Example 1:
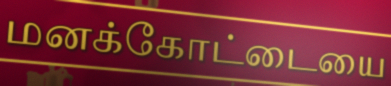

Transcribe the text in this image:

மனக்கோட்டையை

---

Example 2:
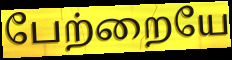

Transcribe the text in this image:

பேற்றையே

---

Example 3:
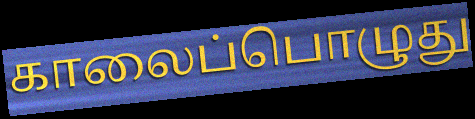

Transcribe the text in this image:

காலைப்பொழுது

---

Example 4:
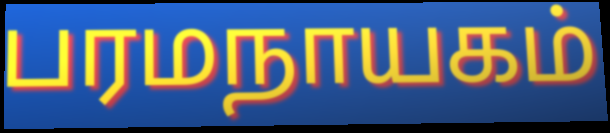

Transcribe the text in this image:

பரமநாயகம்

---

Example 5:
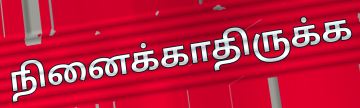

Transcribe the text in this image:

நினைக்காதிருக்க